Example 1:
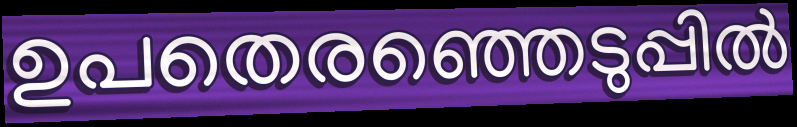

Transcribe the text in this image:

ഉപതെരഞ്ഞെടുപ്പിൽ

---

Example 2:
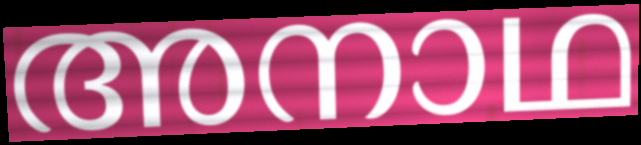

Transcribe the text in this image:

അനാഥ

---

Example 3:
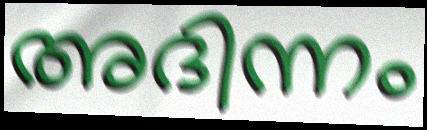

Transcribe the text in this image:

അദിന്നം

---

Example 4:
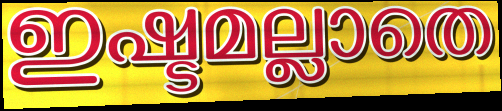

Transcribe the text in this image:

ഇഷ്ടമല്ലാതെ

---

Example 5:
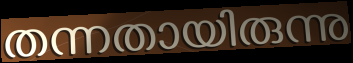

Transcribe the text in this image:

തന്നതായിരുന്നു